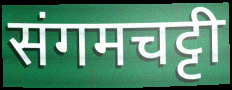
संगमचट्टी